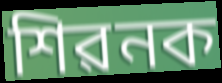
শিৱনক